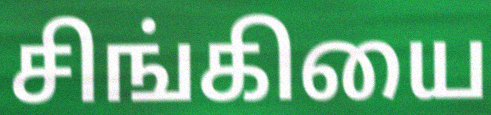
சிங்கியை